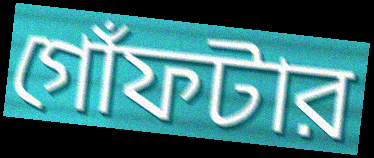
গোঁফটার